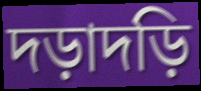
দড়াদড়ি